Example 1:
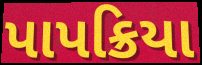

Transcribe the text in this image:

પાપક્રિયા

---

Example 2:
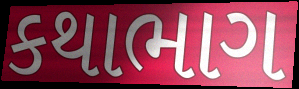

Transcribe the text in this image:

કથાભાગ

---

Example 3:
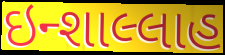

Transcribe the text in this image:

ઇન્શાલ્લાહ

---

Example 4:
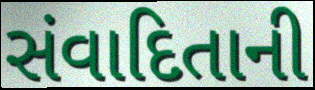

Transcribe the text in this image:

સંવાદિતાની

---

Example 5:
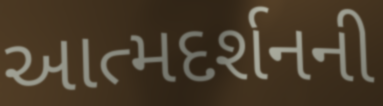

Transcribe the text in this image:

આત્મદર્શનની